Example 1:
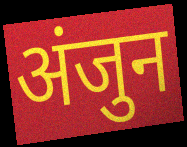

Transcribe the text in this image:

अंजुन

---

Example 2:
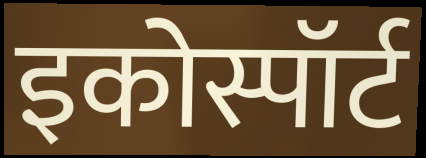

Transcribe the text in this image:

इकोस्पॉर्ट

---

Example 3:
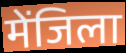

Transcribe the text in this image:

मेंजिला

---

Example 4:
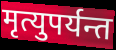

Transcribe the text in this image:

मृत्युपर्यन्त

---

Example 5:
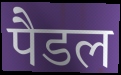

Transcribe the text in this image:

पैडल